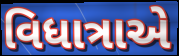
વિધાત્રાએ